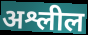
अश्लील